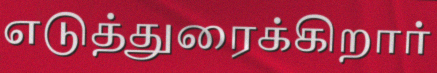
எடுத்துரைக்கிறார்